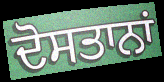
ਦੋਸਤਾਨਾਂ